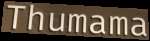
Thumama